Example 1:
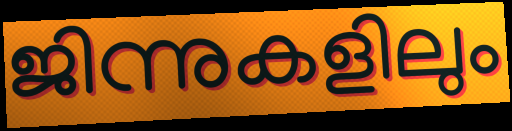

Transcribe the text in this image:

ജിന്നുകളിലും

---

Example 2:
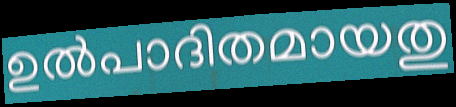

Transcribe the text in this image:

ഉൽപാദിതമായതു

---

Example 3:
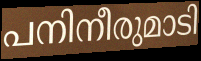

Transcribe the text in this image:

പനിനീരുമാടി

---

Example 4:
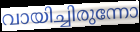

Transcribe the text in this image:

വായിച്ചിരുന്നോ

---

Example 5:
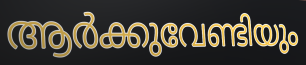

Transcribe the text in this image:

ആർക്കുവേണ്ടിയും